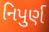
નિપુર્ણ